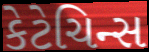
કેટેચિન્સ